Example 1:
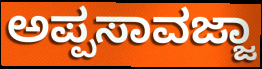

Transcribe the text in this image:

ಅಪ್ಪಸಾವಜ್ಜಾ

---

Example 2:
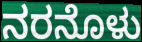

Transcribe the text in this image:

ನರನೊಳು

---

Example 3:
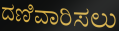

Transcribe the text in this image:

ದಣಿವಾರಿಸಲು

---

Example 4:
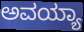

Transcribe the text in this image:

ಅವಯ್ಯಾ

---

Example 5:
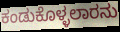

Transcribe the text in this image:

ಕಂಡುಕೊಳ್ಳಲಾರನು